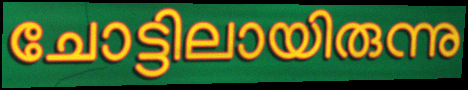
ചോട്ടിലായിരുന്നു